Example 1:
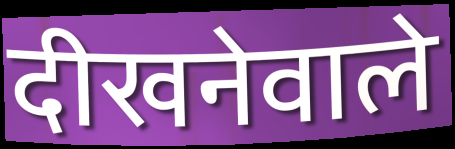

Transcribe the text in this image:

दीखनेवाले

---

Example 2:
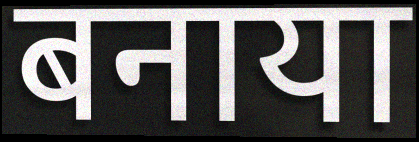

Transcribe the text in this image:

बनाया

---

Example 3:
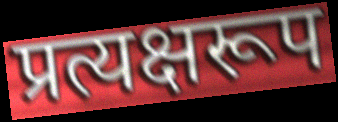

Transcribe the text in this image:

प्रत्यक्षरूप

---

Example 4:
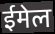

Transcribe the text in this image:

ईमेल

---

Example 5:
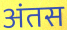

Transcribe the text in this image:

अंतस